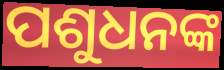
ପଶୁଧନଙ୍କ